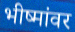
भीष्मांवर